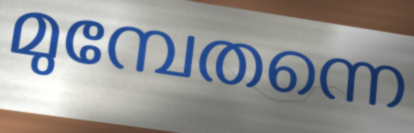
മുമ്പേതന്നെ